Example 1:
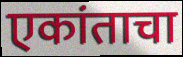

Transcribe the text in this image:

एकांताचा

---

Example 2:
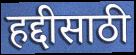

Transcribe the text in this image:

हद्दीसाठी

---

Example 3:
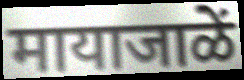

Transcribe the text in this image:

मायाजाळें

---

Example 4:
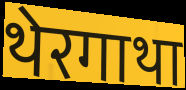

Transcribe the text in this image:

थेरगाथा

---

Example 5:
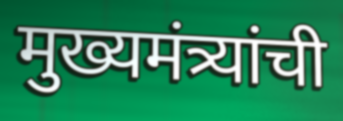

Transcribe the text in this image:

मुख्यमंत्र्यांची